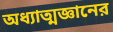
অধ্যাত্মজ্ঞানের